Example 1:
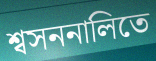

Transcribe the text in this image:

শ্বসননালিতে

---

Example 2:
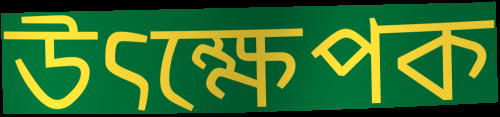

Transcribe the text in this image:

উৎক্ষেপক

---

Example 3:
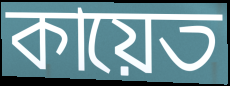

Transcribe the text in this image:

কায়েত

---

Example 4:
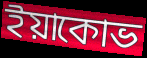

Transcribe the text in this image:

ইয়াকোভ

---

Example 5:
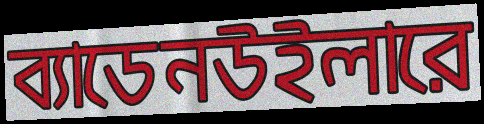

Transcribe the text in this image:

ব্যাডেনউইলারে